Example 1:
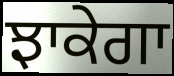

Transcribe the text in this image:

ਝਾਕੇਗਾ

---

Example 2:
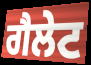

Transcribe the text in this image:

ਗੈਲੇਟ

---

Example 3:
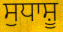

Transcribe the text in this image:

ਸੁਧਾਸ਼ੂ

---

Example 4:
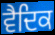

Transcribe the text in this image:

ਵੈਦਿਕ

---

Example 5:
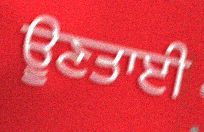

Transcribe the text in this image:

ਊਣਤਾਈ